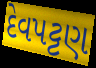
દેવપટ્ટણ